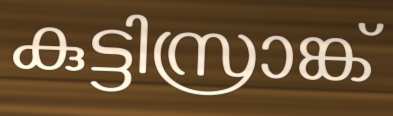
കുട്ടിസ്രാങ്ക്